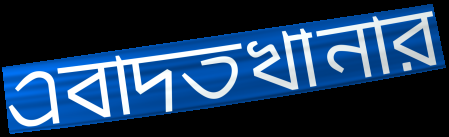
এবাদতখানার